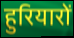
हुरियारों